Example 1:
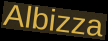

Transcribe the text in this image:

Albizza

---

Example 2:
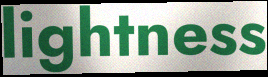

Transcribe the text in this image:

lightness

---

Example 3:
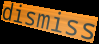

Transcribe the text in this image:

dismiss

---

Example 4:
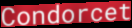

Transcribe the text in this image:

Condorcet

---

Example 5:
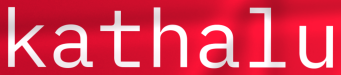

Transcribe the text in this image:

kathalu